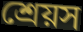
শ্রেয়স